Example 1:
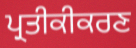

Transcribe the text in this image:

ਪ੍ਰਤੀਕੀਕਰਣ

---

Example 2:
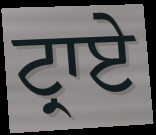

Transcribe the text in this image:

ਟ੍ਰਾਏ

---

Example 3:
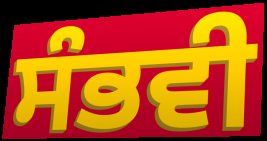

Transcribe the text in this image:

ਸੰਭਵੀ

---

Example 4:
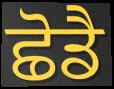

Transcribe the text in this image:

ਛੋਡੈ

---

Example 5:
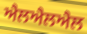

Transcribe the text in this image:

ਐਲਐਲਐਲ